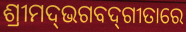
ଶ୍ରୀମଦ୍‌ଭଗବଦ୍‌ଗୀତାରେ